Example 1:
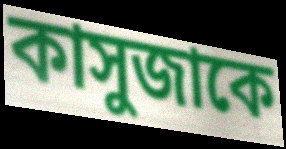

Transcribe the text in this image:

কাসুজাকে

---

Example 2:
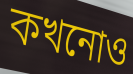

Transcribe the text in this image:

কখনোও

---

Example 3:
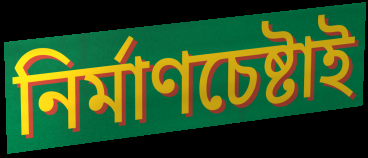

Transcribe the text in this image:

নির্মাণচেষ্টাই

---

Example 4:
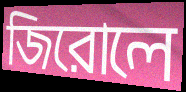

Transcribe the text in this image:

জিরোলে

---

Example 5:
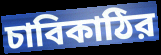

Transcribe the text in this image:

চাবিকাঠির